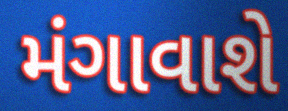
મંગાવાશે